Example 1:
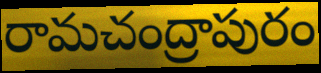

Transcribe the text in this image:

రామచంద్రాపురం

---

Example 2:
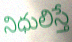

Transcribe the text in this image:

నిధులిస్తే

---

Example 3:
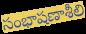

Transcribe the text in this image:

సంభాషణాశీలి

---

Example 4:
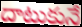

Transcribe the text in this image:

దాటుకునే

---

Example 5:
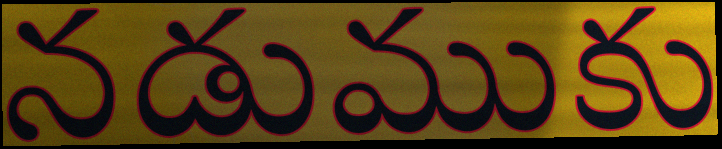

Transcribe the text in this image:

నడుముకు